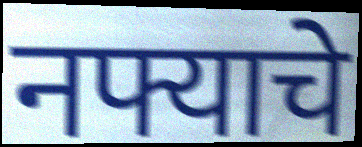
नफ्याचे